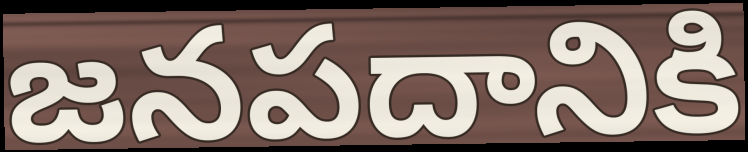
జనపదానికి